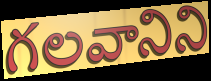
గలవానిని